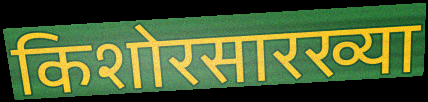
किशोरसारख्या